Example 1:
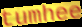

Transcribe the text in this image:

tumhee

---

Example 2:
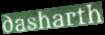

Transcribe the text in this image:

dasharth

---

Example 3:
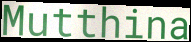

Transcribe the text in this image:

Mutthina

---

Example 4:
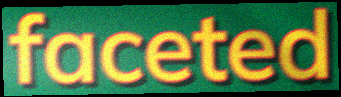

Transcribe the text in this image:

faceted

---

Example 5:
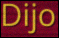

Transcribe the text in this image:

Dijo